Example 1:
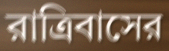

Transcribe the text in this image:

রাত্রিবাসের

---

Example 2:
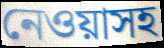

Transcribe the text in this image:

নেওয়াসহ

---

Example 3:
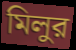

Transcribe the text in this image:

মিলুর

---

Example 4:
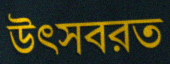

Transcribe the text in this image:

উৎসবরত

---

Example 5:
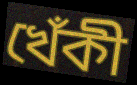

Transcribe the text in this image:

খেঁকী